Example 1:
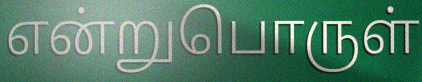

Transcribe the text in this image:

என்றுபொருள்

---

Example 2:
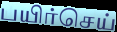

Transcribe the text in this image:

பயிர்செய்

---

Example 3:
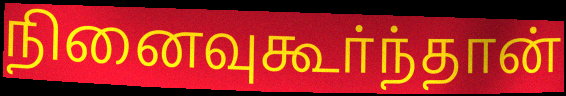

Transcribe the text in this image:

நினைவுகூர்ந்தான்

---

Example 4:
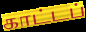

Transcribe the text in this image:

காட்டப்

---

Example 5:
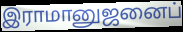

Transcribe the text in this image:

இராமானுஜனைப்